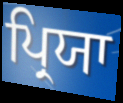
ਪ੍ਰਿਯਾ